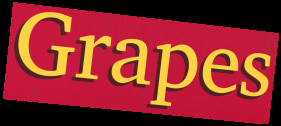
Grapes